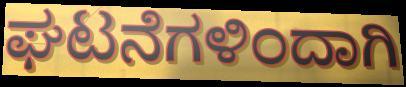
ಘಟನೆಗಳಿಂದಾಗಿ